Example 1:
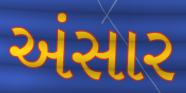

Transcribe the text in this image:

અંસાર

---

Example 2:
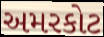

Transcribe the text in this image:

અમરકોટ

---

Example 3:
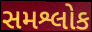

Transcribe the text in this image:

સમશ્લોક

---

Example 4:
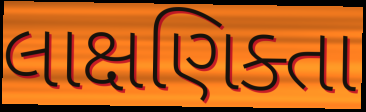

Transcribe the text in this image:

લાક્ષણિક્તા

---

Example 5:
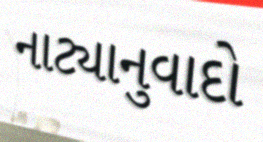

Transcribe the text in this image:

નાટ્યાનુવાદો